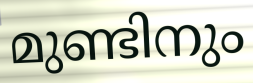
മുണ്ടിനും